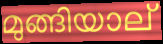
മുങ്ങിയാല്